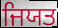
ਜਿਯਤ